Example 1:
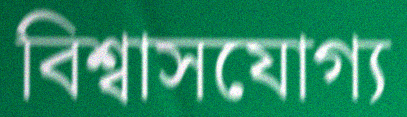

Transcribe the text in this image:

বিশ্বাসযোগ্য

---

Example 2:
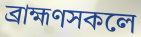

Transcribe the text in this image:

ব্ৰাহ্মণসকলে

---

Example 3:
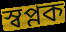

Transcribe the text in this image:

স্বপ্নক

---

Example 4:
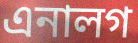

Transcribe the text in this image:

এনালগ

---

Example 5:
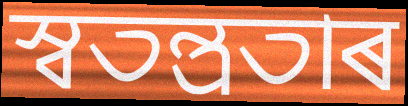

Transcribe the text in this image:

স্বতন্ত্ৰতাৰ